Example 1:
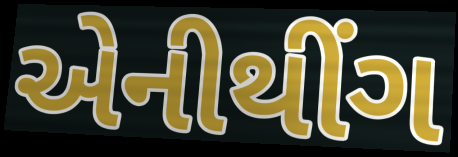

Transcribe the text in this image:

એનીથીંગ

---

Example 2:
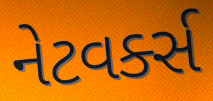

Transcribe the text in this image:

નેટવર્ક્સ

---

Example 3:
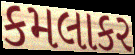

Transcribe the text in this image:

કમલાકર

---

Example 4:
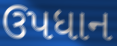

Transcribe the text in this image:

ઉપધાન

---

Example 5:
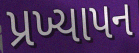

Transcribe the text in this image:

પ્રખ્યાપન